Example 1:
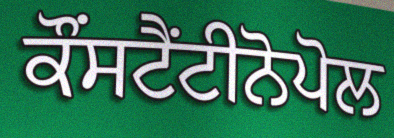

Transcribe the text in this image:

ਕੌਂਸਟੈਂਟੀਨੋਪੋਲ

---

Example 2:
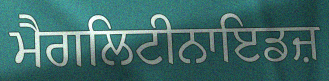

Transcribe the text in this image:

ਮੈਗਲਿਟੀਨਾਇਡਜ਼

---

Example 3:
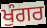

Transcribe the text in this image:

ਖੁੰਗਰ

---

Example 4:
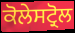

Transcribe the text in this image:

ਕੋਲੇਸਟ੍ਰੋਲ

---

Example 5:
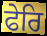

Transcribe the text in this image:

ਫੇਰਿ